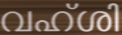
വഹ്ശി